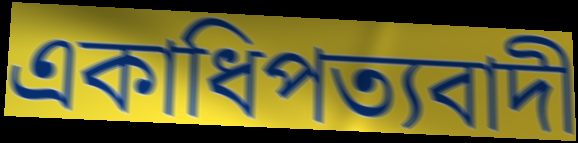
একাধিপত্যবাদী